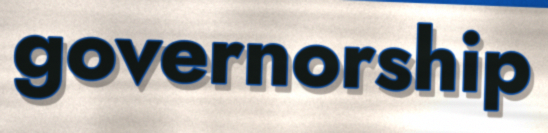
governorship